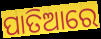
ପାତିଆରେ